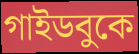
গাইডবুকে